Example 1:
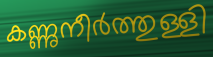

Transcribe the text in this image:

കണ്ണുനീർത്തുള്ളി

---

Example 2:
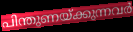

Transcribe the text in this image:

പിന്തുണയ്ക്കുന്നവർ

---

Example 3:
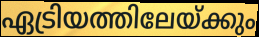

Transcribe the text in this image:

ഏട്രിയത്തിലേയ്ക്കും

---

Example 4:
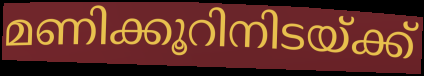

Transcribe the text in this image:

മണിക്കൂറിനിടയ്ക്ക്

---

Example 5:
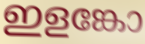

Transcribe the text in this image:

ഇളങ്കോ